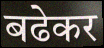
बढेकर